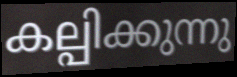
കല്പിക്കുന്നു